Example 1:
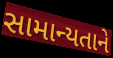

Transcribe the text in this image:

સામાન્યતાને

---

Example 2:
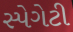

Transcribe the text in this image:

સ્પેગેટી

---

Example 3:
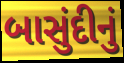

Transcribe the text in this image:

બાસુંદીનું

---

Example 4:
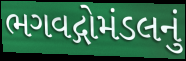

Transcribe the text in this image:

ભગવદ્ગોમંડલનું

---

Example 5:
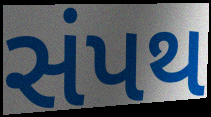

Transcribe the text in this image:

સંપથ